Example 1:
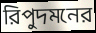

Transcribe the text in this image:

রিপুদমনের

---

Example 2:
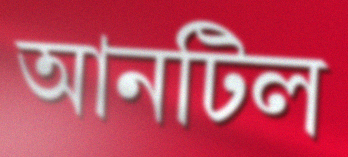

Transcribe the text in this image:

আনটিল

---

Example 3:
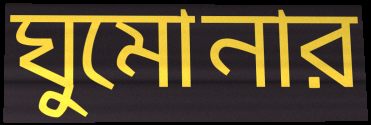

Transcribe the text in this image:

ঘুমোনার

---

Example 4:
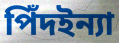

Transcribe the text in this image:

পিঁদইন্যা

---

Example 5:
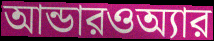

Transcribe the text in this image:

আন্ডারওঅ্যার